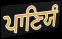
ਪਾਣਿਯੰ